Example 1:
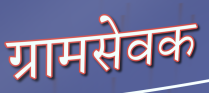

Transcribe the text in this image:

ग्रामसेवक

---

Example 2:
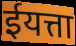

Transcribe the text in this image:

ईयत्ता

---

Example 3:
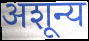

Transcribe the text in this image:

अशून्य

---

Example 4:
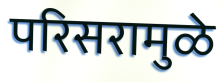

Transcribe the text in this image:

परिसरामुळे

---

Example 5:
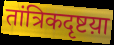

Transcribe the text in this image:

तांत्रिकदृष्टय़ा